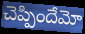
చెప్పిందేమో